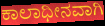
ಕಾಲಾಧೀನವಾಗಿ